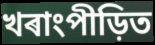
খৰাংপীড়িত